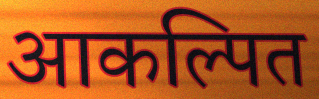
आकल्पित